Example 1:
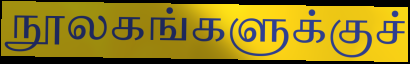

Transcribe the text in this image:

நூலகங்களுக்குச்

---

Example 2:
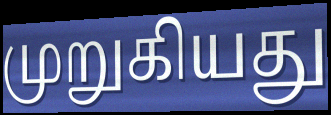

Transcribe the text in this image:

முறுகியது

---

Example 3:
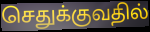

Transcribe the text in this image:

செதுக்குவதில்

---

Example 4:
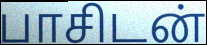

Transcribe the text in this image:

பாசிடன்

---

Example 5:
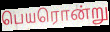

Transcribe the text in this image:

பெயரொன்று